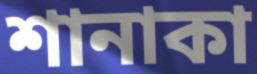
শানাকা